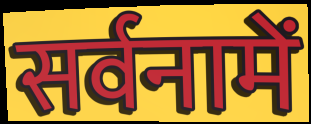
सर्वनामें